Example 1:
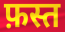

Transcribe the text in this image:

फ़स्त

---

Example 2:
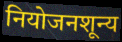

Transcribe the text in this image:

नियोजनशून्य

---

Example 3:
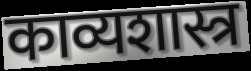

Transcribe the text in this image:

काव्यशास्त्र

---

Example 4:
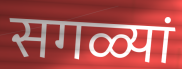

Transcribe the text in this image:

सगळ्यां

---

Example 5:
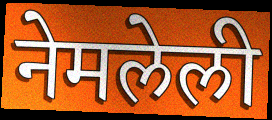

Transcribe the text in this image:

नेमलेली